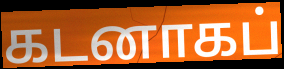
கடனாகப்